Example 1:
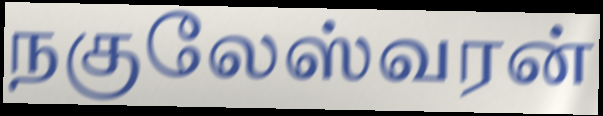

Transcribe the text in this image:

நகுலேஸ்வரன்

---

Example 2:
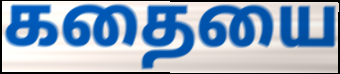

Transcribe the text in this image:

கதையை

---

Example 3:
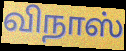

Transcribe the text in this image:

விநாஸ்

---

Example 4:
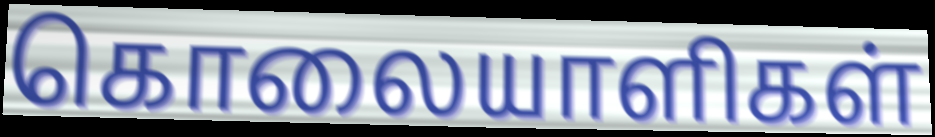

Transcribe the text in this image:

கொலையாளிகள்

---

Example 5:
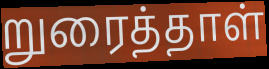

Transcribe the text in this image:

றுரைத்தாள்